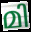
മി